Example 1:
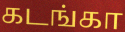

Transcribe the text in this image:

கடங்கா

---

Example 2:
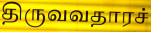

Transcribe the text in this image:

திருவவதாரச்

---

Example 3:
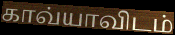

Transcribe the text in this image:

காவ்யாவிடம்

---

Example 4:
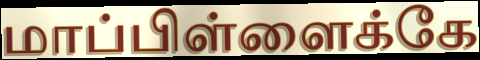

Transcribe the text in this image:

மாப்பிள்ளைக்கே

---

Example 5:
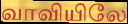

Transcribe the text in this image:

வாவியிலே